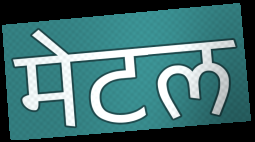
मेटल